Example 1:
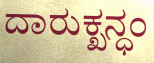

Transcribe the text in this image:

ದಾರುಕ್ಖನ್ಧಂ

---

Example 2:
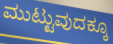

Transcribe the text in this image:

ಮುಟ್ಟುವುದಕ್ಕೂ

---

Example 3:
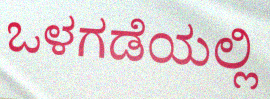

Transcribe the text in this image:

ಒಳಗಡೆಯಲ್ಲಿ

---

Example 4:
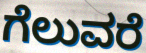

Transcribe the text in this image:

ಗೆಲುವರೆ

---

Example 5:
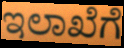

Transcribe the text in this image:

ಇಲಾಖೆಗೆ